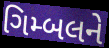
ગિમ્બલને